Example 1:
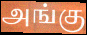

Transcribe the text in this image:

அங்கு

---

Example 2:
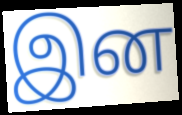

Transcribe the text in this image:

இன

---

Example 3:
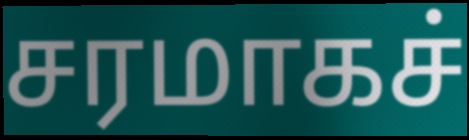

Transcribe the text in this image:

சரமாகச்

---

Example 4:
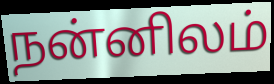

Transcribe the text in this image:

நன்னிலம்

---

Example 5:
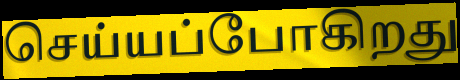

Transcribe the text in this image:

செய்யப்போகிறது